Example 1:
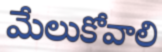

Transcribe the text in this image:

మేలుకోవాలి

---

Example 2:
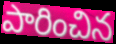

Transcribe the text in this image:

పారించిన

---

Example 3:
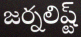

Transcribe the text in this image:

జర్నలిష్ట్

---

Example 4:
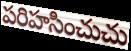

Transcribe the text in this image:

పరిహసించుచు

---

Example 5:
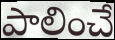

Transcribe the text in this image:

పాలించే